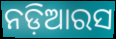
ନଡ଼ିଆରସ